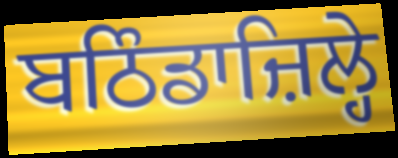
ਬਠਿੰਡਾਜ਼ਿਲ੍ਹੇ